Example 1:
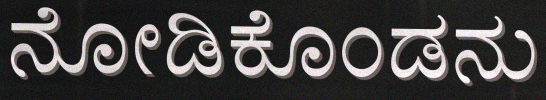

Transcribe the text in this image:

ನೋಡಿಕೊಂಡನು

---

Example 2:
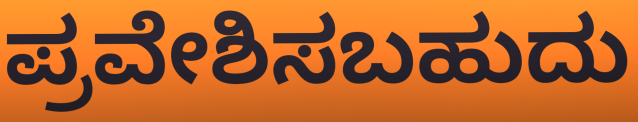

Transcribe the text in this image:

ಪ್ರವೇಶಿಸಬಹುದು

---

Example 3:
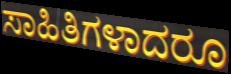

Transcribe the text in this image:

ಸಾಹಿತಿಗಳಾದರೂ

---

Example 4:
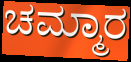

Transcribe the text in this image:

ಚಮ್ಮಾರ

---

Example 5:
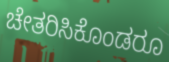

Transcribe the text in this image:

ಚೇತರಿಸಿಕೊಂಡರೂ